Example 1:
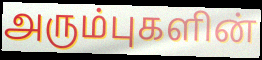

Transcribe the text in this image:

அரும்புகளின்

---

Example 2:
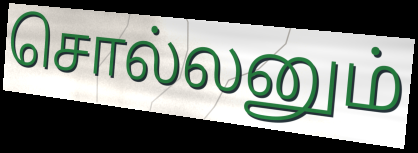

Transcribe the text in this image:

சொல்லனும்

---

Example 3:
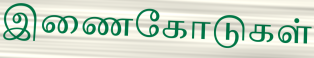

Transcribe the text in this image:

இணைகோடுகள்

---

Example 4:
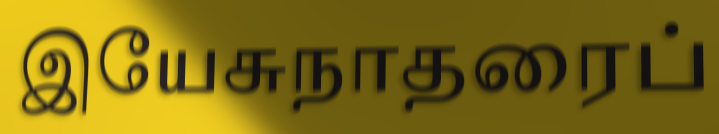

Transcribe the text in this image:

இயேசுநாதரைப்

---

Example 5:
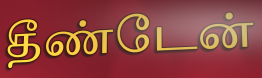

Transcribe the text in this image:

தீண்டேன்